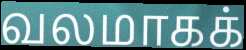
வலமாகக்